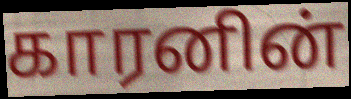
காரனின்